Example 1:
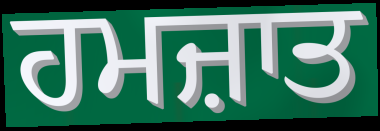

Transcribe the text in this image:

ਹਮਜ਼ਾਤ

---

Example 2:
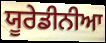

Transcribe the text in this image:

ਯੂਰੇਡੀਨੀਆ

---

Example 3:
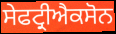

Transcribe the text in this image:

ਸੇਫਟ੍ਰੀਐਕਸੋਨ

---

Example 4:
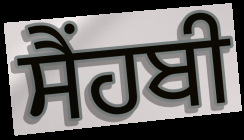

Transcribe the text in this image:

ਸੈਂਹਬੀ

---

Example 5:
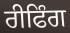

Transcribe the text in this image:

ਰੀਫਿੰਗ